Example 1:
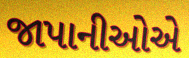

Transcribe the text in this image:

જાપાનીઓએ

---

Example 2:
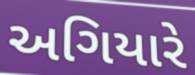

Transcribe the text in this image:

અગિયારે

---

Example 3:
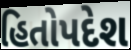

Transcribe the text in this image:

હિતોપદેશ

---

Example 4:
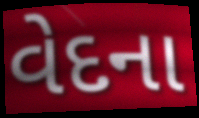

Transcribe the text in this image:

વેદના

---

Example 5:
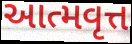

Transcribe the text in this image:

આત્મવૃત્ત